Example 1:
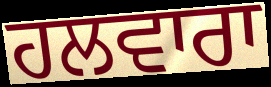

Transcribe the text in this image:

ਹਲਵਾਰਾ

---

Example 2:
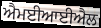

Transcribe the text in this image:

ਐਮਈਆਈਐਲ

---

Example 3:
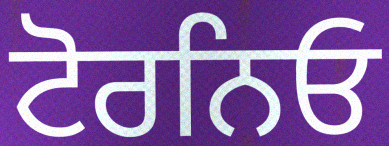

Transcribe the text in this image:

ਟੋਰਨਿਓ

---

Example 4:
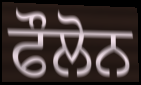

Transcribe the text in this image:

ਫੌਲੋਨ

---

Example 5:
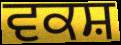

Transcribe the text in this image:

ਵਕਸ਼